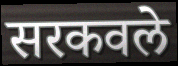
सरकवले